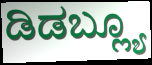
ಡಿಡಬ್ಲ್ಯೂ